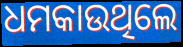
ଧମକାଉଥିଲେ